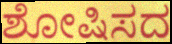
ಶೋಷಿಸದ